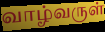
வாழ்வருள்